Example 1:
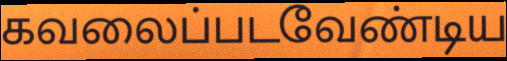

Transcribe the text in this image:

கவலைப்படவேண்டிய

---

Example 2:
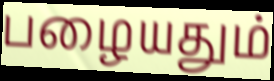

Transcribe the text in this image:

பழையதும்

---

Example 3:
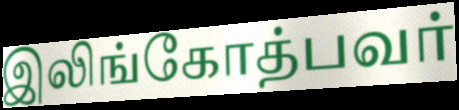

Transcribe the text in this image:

இலிங்கோத்பவர்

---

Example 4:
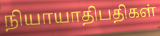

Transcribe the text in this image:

நியாயாதிபதிகள்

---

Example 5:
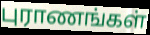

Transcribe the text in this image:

புராணங்கள்